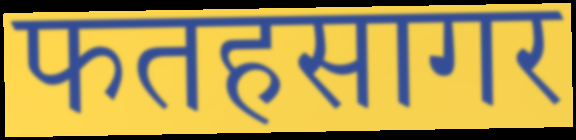
फतहसागर